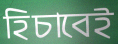
হিচাবেই